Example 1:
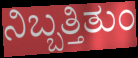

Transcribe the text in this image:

ನಿಬ್ಬತ್ತಿತುಂ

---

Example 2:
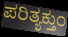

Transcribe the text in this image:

ಪರಿತ್ಯಕ್ತುಂ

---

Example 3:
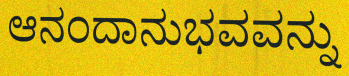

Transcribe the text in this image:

ಆನಂದಾನುಭವವನ್ನು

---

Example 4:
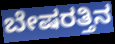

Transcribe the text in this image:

ಬೇಷರತ್ತಿನ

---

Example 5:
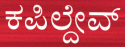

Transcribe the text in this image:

ಕಪಿಲ್ದೇವ್